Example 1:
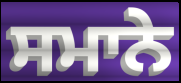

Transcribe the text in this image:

ਸਮਾਨੇ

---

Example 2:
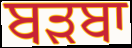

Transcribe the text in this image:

ਬੜਬਾ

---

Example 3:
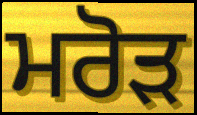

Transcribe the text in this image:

ਮਰੋੜ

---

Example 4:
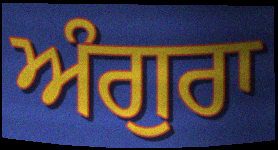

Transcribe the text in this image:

ਅੰਗੁਰਾ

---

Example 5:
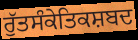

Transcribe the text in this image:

ਰੁੱਤਸੰਕੇਤਿਕਸ਼ਬਦ